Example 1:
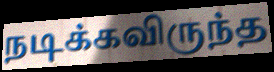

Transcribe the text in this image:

நடிக்கவிருந்த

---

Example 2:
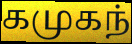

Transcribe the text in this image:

கமுகந்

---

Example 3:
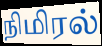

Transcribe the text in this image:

நிமிரல்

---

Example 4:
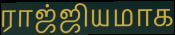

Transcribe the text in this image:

ராஜ்ஜியமாக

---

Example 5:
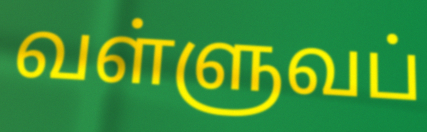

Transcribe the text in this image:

வள்ளுவப்